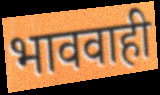
भाववाही